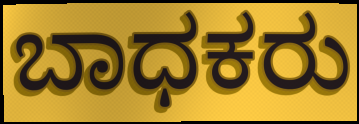
ಬಾಧಕರು